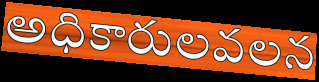
అధికారులవలన